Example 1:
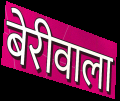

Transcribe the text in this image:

बेरीवाला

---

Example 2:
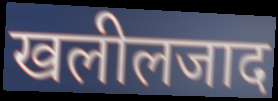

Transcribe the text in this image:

खलीलजाद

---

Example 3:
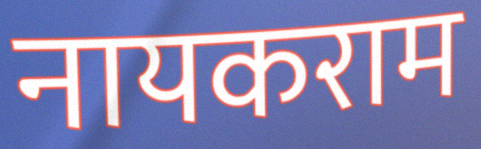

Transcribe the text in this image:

नायकराम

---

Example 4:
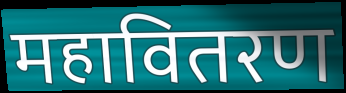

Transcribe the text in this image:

महावितरण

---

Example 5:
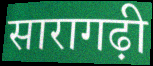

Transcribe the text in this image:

सारागढ़ी